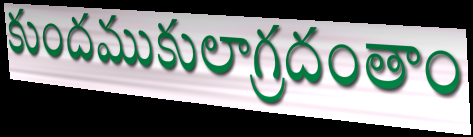
కుందముకులాగ్రదంతాం